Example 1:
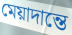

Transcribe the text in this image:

মেয়াদান্তে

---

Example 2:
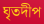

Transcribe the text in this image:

ঘৃতদীপ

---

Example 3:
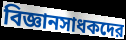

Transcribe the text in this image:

বিজ্ঞানসাধকদের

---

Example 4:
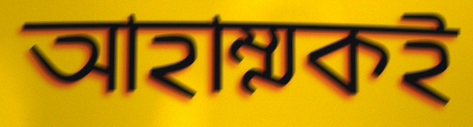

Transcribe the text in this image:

আহাম্মকই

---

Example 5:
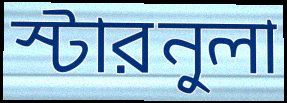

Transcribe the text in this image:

স্টারনুলা